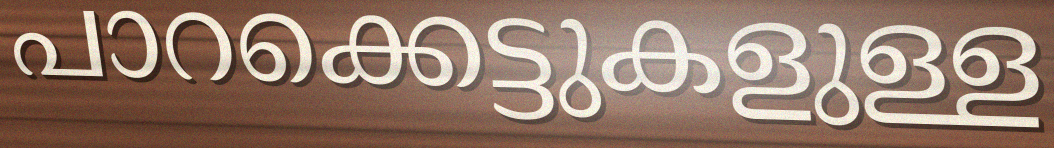
പാറക്കെട്ടുകളുള്ള